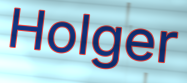
Holger